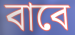
বাবে